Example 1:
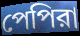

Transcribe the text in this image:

পেপিরা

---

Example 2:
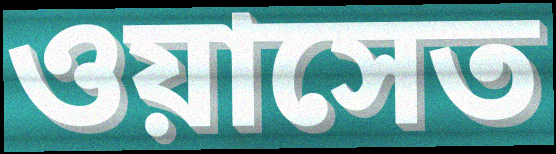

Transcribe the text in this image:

ওয়াসেত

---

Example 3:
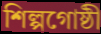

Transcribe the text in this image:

শিল্পগোষ্ঠী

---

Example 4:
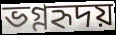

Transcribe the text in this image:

ভগ্নহৃদয়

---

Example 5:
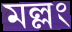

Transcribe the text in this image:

মল্লং